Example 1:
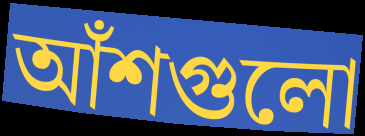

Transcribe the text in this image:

আঁশগুলো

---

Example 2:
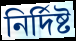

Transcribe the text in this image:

নির্দিষ্ট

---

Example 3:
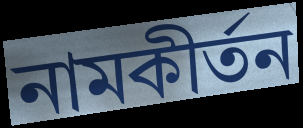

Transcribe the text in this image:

নামকীর্তন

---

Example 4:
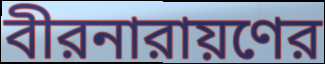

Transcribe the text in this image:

বীরনারায়ণের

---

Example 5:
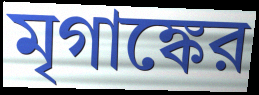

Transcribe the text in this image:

মৃগাঙ্কের